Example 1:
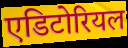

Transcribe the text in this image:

एडिटोरियल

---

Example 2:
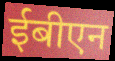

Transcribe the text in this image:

ईबीएन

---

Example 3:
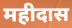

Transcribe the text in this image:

महीदास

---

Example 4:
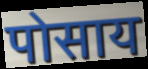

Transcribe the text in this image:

पोसाय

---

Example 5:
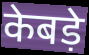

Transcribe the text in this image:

केबड़े